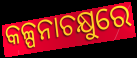
କଳ୍ପନାଚକ୍ଷୁରେ